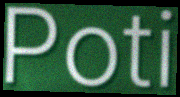
Poti